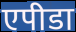
एपीडा